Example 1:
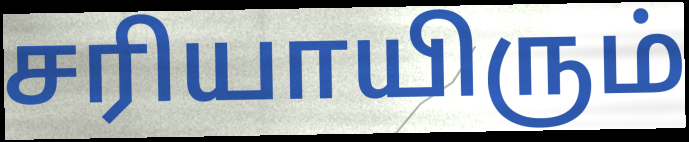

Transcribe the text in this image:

சரியாயிரும்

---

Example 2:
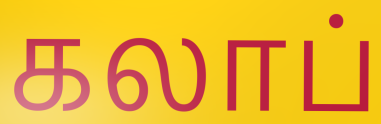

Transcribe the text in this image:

கலாப்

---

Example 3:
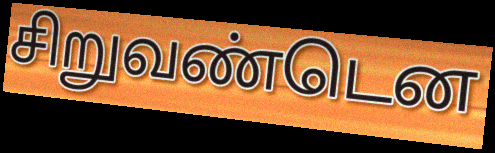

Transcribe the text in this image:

சிறுவண்டென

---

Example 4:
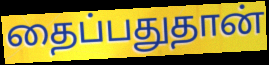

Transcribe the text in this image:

தைப்பதுதான்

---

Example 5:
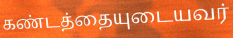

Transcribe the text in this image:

கண்டத்தையுடையவர்